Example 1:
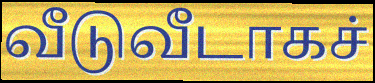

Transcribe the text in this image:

வீடுவீடாகச்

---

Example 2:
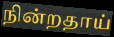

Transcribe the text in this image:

நின்றதாய்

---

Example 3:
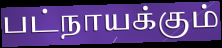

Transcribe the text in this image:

பட்நாயக்கும்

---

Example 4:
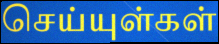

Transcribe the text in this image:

செய்யுள்கள்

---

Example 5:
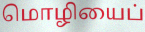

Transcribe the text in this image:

மொழியைப்